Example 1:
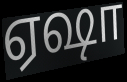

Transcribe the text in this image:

ஏஷா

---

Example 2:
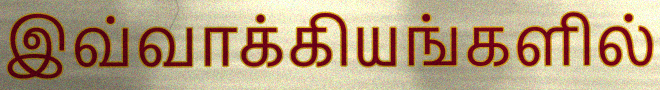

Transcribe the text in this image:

இவ்வாக்கியங்களில்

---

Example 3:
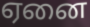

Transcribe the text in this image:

ஏனை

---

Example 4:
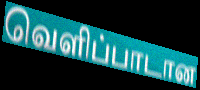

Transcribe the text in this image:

வெளிப்பாடான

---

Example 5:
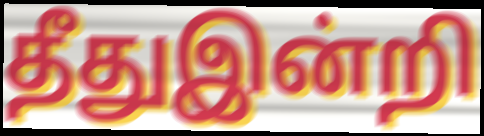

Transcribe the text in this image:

தீதுஇன்றி